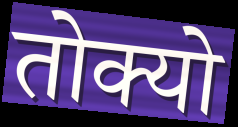
तोक्यो